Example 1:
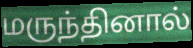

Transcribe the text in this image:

மருந்தினால்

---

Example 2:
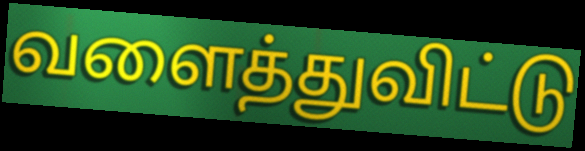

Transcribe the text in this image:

வளைத்துவிட்டு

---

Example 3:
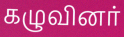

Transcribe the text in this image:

கழுவினர்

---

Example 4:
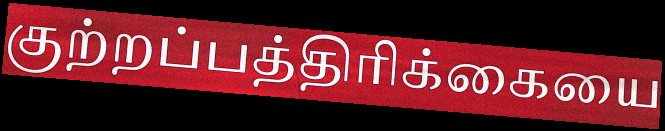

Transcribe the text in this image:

குற்றப்பத்திரிக்கையை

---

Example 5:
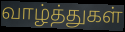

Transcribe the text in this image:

வாழ்த்துகள்